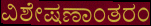
ವಿಶೇಷಣಾಂತರಂ